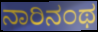
ನಾರಿನಂಥ